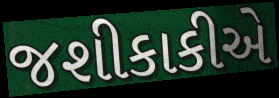
જશીકાકીએ